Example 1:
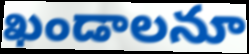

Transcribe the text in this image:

ఖండాలనూ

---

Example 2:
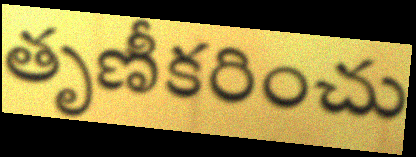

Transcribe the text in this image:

తృణీకరించు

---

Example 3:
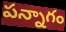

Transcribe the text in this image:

పన్నాగం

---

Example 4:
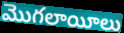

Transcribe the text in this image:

మొగలాయీలు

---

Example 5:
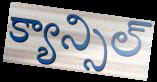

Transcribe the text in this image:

క్యాన్సిల్